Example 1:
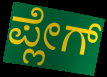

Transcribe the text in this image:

ಪ್ಲೇಗ್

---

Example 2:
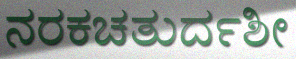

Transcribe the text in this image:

ನರಕಚತುರ್ದಶೀ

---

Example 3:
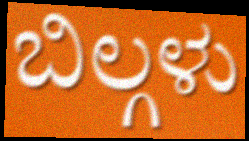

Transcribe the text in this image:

ಬಿಲ್ಗಳು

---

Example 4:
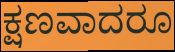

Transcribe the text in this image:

ಕ್ಷಣವಾದರೂ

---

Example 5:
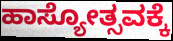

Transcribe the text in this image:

ಹಾಸ್ಯೋತ್ಸವಕ್ಕೆ